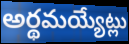
అర్థమయ్యేట్లు